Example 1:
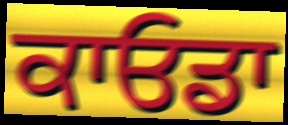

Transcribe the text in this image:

ਕਾਓਡਾ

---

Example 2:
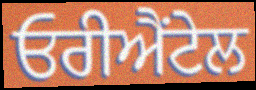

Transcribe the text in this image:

ਓਰੀਐਂਟੇਲ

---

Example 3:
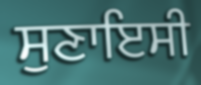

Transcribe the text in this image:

ਸੁਣਾਇਸੀ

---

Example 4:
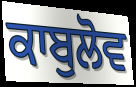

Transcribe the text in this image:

ਕਾਬੁਲੋਵ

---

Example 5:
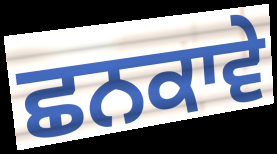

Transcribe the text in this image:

ਛਨਕਾਵੇ